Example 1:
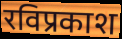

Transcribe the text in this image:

रविप्रकाश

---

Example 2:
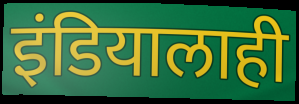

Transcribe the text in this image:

इंडियालाही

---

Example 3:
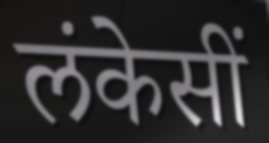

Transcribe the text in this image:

लंकेसीं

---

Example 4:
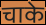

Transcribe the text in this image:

चाके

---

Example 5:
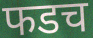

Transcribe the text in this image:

फडच